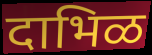
दाभिळ